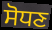
ਸੋਧਣ